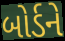
બોર્ડને